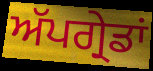
ਅੱਪਗ੍ਰੇਡਾਂ